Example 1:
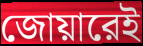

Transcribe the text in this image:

জোয়ারেই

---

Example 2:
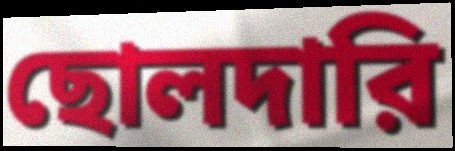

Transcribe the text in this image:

ছোলদারি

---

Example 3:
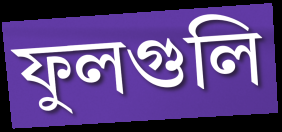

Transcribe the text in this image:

ফুলগুলি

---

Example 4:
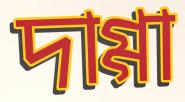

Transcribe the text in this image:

দাগ্গা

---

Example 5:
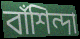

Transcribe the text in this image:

বাঁশিন্দা